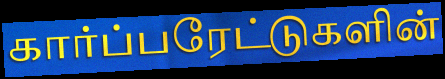
கார்ப்பரேட்டுகளின்